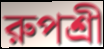
রুপশ্রী